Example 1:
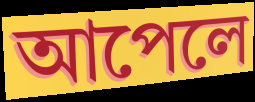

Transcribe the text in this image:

আপেলে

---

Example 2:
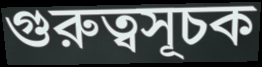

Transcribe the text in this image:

গুরুত্বসূচক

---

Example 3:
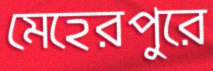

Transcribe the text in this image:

মেহেরপুরে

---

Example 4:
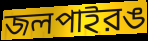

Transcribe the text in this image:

জলপাইরঙ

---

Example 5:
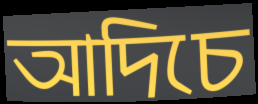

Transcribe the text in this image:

আদিচে